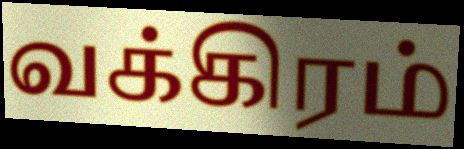
வக்கிரம்